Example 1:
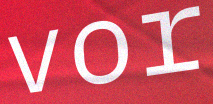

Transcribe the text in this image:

vor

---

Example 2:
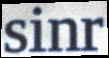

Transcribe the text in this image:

sinr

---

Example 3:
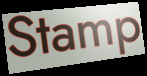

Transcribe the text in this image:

Stamp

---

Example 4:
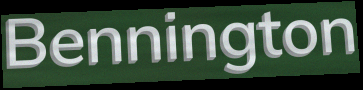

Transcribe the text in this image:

Bennington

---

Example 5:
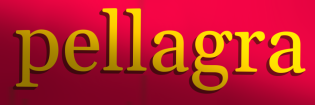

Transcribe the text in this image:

pellagra